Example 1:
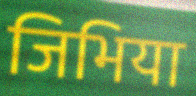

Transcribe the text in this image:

जिभिया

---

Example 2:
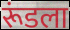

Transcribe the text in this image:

रूंडला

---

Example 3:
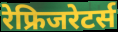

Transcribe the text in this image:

रेफ्रिजरेटर्स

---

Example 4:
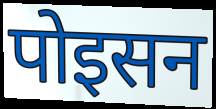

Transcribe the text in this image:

पोइसन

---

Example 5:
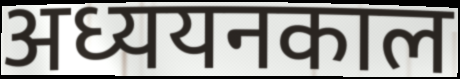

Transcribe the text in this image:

अध्ययनकाल